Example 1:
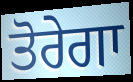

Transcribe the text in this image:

ਤੋਰੇਗਾ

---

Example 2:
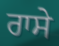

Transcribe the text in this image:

ਰਾਸੇ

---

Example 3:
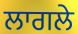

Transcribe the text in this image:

ਲਾਗਲੇ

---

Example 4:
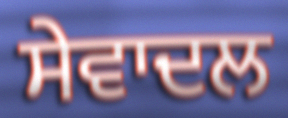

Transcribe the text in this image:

ਸੇਵਾਦਲ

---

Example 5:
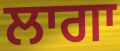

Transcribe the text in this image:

ਲਾਗਾ